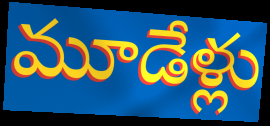
మూడేళ్లు